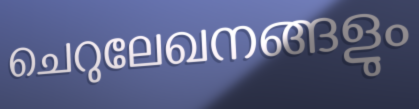
ചെറുലേഖനങ്ങളും